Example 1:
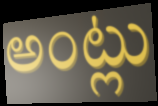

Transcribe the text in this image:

అంట్లు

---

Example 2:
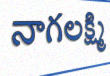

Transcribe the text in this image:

నాగలక్ష్మి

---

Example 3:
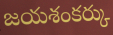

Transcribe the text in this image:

జయశంకర్కు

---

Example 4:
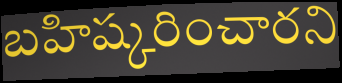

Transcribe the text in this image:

బహిష్కరించారని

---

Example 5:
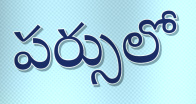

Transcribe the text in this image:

పర్సులో